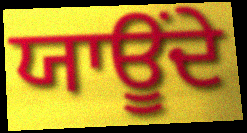
ਯਾਊਂਦੇ